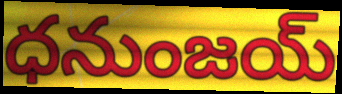
ధనుంజయ్